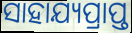
ସାହାଯ୍ୟପ୍ରାପ୍ତ